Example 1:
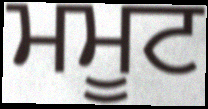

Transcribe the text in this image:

ਮਮੂਟ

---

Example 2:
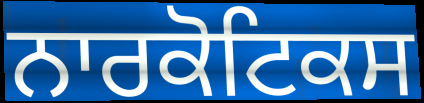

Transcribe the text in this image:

ਨਾਰਕੋਟਿਕਸ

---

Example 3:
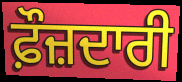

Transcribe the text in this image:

ਫ਼ੌਜ਼ਦਾਰੀ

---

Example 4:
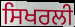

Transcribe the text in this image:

ਸਿਖਰਲੀ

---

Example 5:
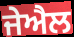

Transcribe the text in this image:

ਜੇਐਲ